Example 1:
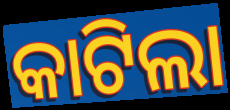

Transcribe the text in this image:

କାଟିଲା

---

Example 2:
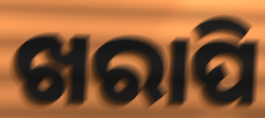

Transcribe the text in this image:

ଖରାପି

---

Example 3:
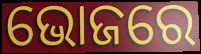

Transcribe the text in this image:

ଭୋଜରେ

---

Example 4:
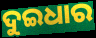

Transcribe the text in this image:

ଦୁଇଧାର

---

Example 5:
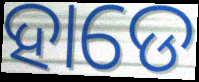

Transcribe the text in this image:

ହାଡେ